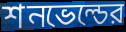
শনভেল্ডের